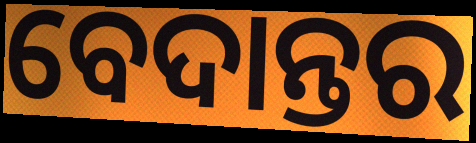
ବେଦାନ୍ତର